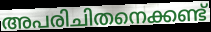
അപരിചിതനെക്കണ്ട്